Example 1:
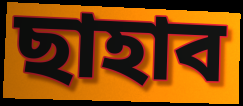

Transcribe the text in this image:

ছাহাব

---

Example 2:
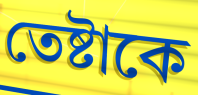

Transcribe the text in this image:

তেষ্টাকে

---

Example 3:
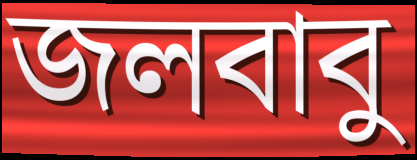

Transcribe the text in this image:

জলবাবু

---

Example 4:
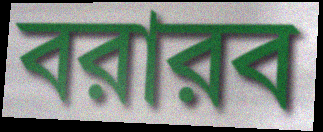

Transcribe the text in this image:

বরারব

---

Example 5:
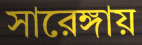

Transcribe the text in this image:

সারেঙ্গায়